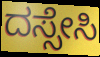
ದಸ್ಸೇಸಿ